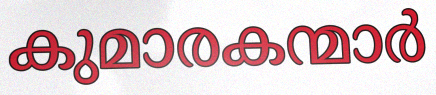
കുമാരകന്മാർ